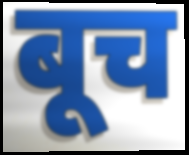
बूच